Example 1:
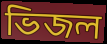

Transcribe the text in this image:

ভিজল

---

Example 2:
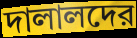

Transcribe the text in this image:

দালালদের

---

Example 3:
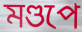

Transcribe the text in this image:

মণ্ডপে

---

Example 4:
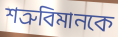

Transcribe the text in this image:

শত্রুবিমানকে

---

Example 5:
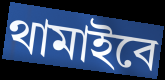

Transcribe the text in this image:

থামাইবে